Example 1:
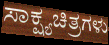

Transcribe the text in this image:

ಸಾಕ್ಷ್ಯಚಿತ್ರಗಳು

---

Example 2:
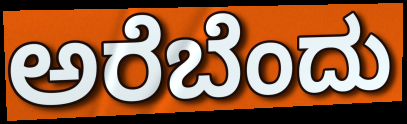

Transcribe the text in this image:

ಅರೆಬೆಂದು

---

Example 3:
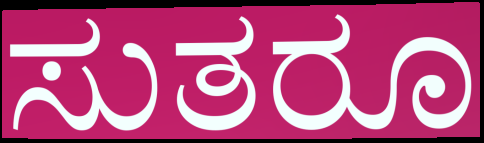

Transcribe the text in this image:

ಸುತರೂ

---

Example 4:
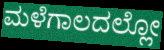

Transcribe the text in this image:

ಮಳೆಗಾಲದಲ್ಲೋ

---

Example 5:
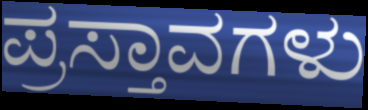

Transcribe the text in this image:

ಪ್ರಸ್ತಾವಗಳು